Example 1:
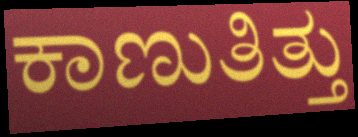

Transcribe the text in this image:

ಕಾಣುತಿತ್ತು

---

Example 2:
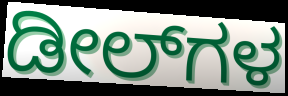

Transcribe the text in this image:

ಡೀಲ್‌ಗಳ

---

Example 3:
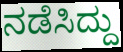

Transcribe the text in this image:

ನಡೆಸಿದ್ದು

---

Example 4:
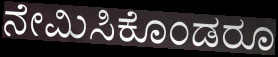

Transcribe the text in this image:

ನೇಮಿಸಿಕೊಂಡರೂ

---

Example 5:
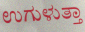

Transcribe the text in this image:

ಉಗುಳುತ್ತಾ